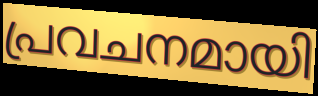
പ്രവചനമായി